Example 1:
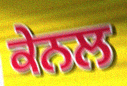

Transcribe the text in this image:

ਕੇਨਲ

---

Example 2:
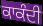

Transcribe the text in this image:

ਕਾਕੰਦੀ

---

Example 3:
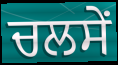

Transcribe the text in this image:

ਚਲਸੇਂ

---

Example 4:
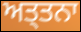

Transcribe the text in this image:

ਅਤ੍ਤਨਾ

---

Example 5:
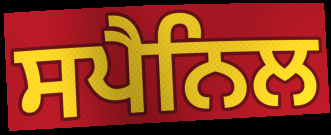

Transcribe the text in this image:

ਸਪੈਨਿਲ